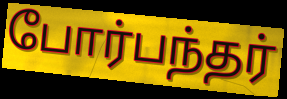
போர்பந்தர்